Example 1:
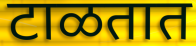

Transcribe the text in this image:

टाळतात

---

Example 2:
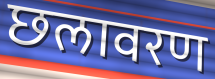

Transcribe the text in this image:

छलावरण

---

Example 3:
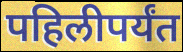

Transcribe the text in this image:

पहिलीपर्यंत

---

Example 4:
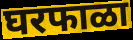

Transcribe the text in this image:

घरफाळा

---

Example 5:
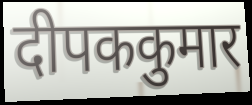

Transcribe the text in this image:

दीपककुमार